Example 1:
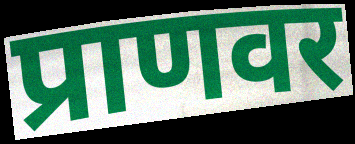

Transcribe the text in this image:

प्राणवर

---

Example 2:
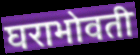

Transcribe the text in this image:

घराभोवती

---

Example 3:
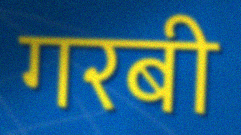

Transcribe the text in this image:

गरबी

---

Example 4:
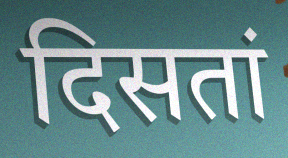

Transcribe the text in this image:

दिसतां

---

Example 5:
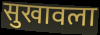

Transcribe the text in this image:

सुखावला